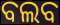
ବଲବ